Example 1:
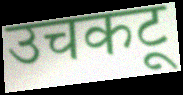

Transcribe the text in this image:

उचकटू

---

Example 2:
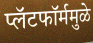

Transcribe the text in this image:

प्लॅटफॉर्ममुळे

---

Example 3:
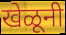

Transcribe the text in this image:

खेळूनी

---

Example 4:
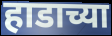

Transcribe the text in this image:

हाडाच्या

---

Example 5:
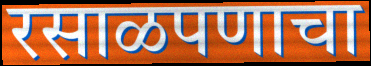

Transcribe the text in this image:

रसाळपणाचा